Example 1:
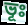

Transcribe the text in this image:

ভূঃ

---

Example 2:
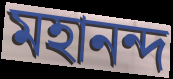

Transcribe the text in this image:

মহানন্দ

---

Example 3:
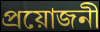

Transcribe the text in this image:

প্রয়োজনী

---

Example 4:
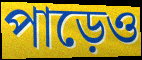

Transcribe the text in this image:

পাড়েও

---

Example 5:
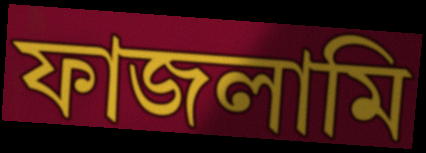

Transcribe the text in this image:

ফাজলামি